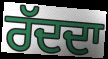
ਰੱਦਦਾ